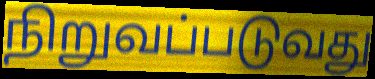
நிறுவப்படுவது